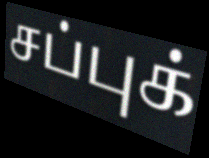
சப்புக்